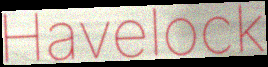
Havelock